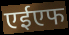
एईएफ